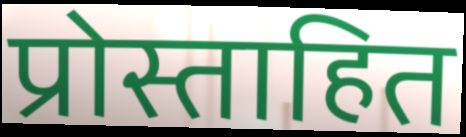
प्रोस्ताहित